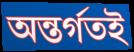
অন্তর্গতই